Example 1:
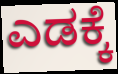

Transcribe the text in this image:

ಎಡಕ್ಕೆ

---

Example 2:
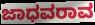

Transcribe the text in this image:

ಜಾಧವರಾವ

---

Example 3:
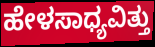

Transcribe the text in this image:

ಹೇಳಸಾಧ್ಯವಿತ್ತು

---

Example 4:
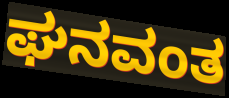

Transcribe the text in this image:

ಘನವಂತ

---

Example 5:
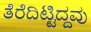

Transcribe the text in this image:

ತೆರೆದಿಟ್ಟಿದ್ದವು